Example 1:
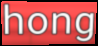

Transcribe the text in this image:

hong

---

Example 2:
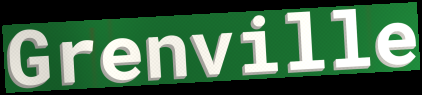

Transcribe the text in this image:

Grenville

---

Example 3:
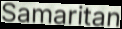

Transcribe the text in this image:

Samaritan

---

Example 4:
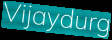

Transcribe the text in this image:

Vijaydurg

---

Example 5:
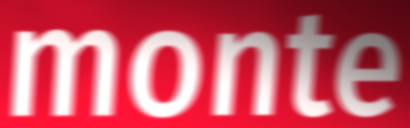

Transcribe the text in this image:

monte